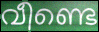
വീണ്ടെ